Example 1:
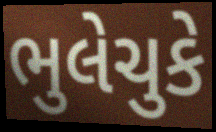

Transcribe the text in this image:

ભુલેચુકે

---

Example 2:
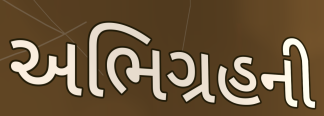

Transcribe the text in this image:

અભિગ્રહની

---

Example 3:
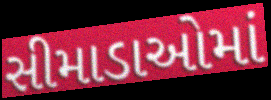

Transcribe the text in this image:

સીમાડાઓમાં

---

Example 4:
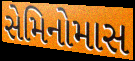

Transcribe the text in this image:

સેમિનોમાસ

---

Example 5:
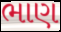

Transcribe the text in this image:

ભાણ